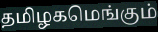
தமிழகமெங்கும்